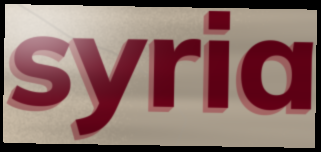
syria